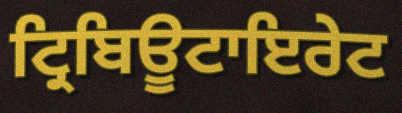
ਟ੍ਰਿਬਿਊਟਾਇਰੇਟ